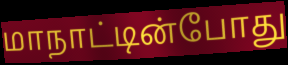
மாநாட்டின்போது